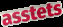
asstets